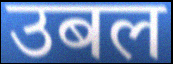
उबल